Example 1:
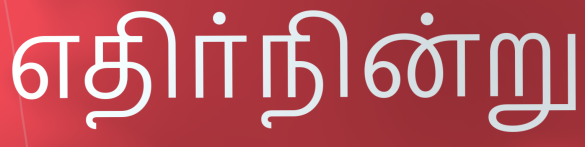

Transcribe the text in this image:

எதிர்நின்று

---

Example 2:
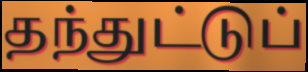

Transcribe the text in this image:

தந்துட்டுப்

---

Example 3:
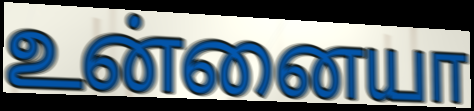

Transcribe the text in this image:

உன்னையா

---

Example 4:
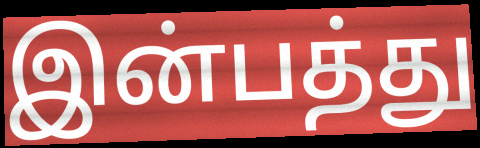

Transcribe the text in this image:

இன்பத்து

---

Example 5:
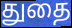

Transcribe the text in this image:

துதை